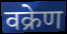
वक्रेण